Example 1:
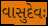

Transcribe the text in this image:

વાસુદેવઃ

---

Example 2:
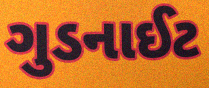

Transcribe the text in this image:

ગુડનાઈટ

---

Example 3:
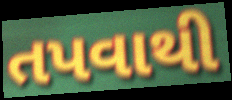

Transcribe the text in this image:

તપવાથી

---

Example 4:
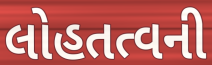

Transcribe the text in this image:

લોહતત્વની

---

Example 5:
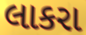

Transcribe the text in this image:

લાકરા